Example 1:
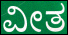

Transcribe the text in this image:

ವೀತ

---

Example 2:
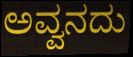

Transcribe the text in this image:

ಅವ್ವನದು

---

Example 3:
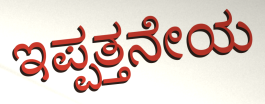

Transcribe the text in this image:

ಇಪ್ಪತ್ತನೇಯ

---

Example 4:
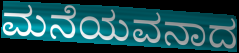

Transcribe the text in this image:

ಮನೆಯವನಾದ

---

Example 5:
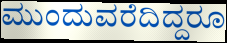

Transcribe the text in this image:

ಮುಂದುವರೆದಿದ್ದರೂ